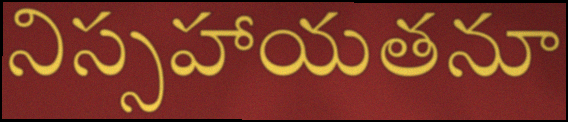
నిస్సహాయతనూ